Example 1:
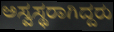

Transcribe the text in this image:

ಅಸ್ವಸ್ಥರಾಗಿದ್ದರು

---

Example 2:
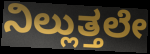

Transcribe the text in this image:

ನಿಲ್ಲುತ್ತಲೇ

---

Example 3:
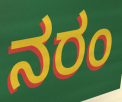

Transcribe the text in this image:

ನರಂ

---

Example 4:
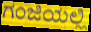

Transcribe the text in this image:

ಗಂಜಿಯಲ್ಲಿ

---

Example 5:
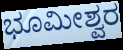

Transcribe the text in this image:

ಭೂಮೀಶ್ವರ